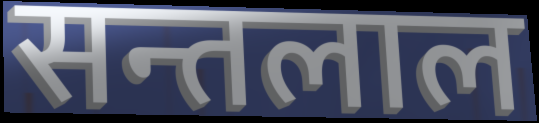
सन्तलाल